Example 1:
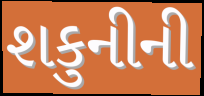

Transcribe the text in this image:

શકુનીની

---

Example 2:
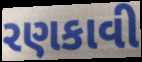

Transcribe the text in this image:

રણકાવી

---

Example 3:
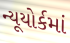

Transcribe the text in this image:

ન્યૂયોર્કમાં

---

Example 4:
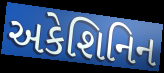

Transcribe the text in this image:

અકેશિનિન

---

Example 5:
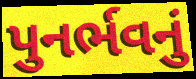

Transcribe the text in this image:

પુનર્ભવનું